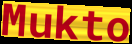
Mukto